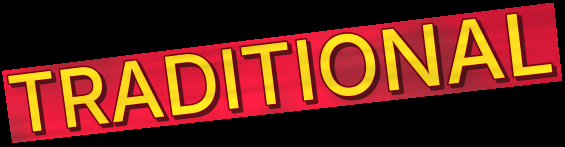
TRADITIONAL